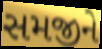
સમજીને